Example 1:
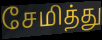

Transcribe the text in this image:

சேமித்து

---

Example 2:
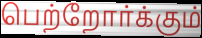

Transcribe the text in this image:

பெற்றோர்க்கும்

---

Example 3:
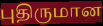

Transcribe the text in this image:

புதிருமான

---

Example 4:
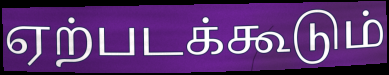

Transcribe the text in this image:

ஏற்படக்கூடும்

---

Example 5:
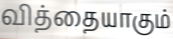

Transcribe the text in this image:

வித்தையாகும்